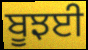
ਬੂਝਈ